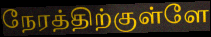
நேரத்திற்குள்ளே